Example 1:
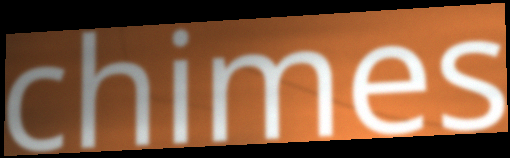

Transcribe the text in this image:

chimes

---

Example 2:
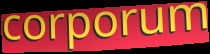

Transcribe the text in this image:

corporum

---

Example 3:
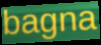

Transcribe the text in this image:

bagna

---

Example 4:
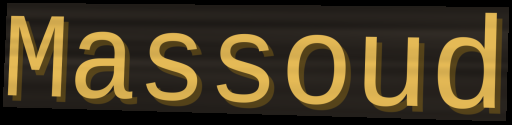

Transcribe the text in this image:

Massoud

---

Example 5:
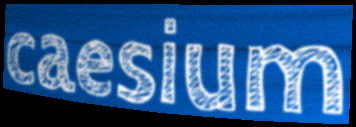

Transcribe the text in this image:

caesium